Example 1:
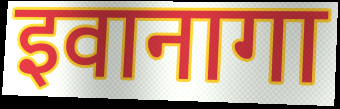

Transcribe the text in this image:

इवानागा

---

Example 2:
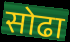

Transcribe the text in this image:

सोढा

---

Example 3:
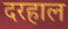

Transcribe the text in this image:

दरहाल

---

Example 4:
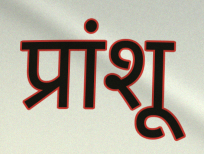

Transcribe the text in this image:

प्रांशू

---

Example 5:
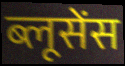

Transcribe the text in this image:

ब्लूसेंस